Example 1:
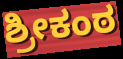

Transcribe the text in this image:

ಶ್ರೀಕಂಠ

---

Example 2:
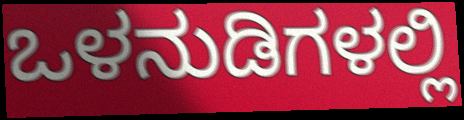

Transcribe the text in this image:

ಒಳನುಡಿಗಳಲ್ಲಿ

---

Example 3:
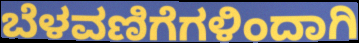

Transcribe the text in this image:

ಬೆಳವಣಿಗೆಗಳಿಂದಾಗಿ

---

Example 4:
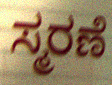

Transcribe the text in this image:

ಸ್ಮರಣೆ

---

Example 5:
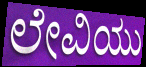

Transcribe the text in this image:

ಲೇವಿಯು